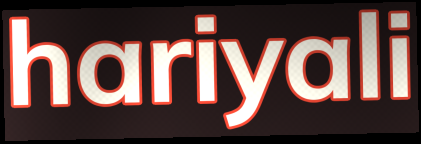
hariyali